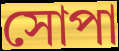
সোপা